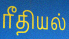
ரீதியல்